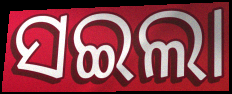
ସଇଲା